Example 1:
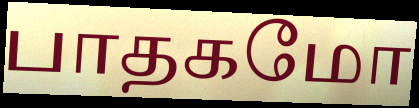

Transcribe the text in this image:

பாதகமோ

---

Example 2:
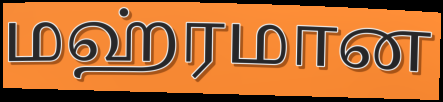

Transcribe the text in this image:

மஹ்ரமான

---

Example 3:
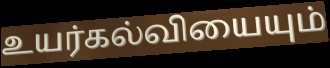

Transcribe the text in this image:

உயர்கல்வியையும்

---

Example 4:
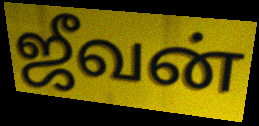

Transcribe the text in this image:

ஜீவன்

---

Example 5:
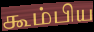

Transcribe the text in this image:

கூம்பிய